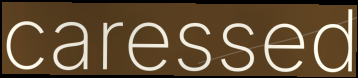
caressed